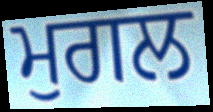
ਮੁਗਲ